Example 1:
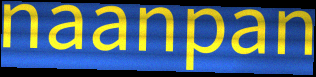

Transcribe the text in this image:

naanpan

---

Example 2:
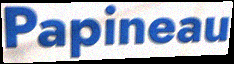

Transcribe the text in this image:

Papineau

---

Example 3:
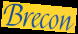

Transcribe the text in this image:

Brecon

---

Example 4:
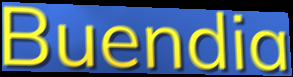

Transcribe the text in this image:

Buendia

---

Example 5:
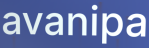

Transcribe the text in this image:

avanipa